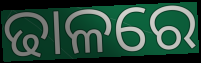
ଢାଳରେ